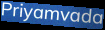
Priyamvada